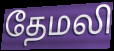
தேமலி